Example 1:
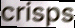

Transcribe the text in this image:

crisps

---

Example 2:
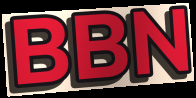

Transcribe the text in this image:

BBN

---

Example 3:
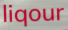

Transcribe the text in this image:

liqour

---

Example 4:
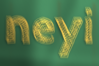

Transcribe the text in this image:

neyi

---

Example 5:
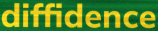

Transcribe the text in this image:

diffidence